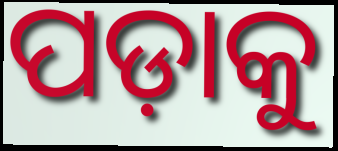
ପଡ଼ାକୁ